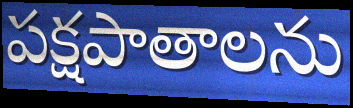
పక్షపాతాలను